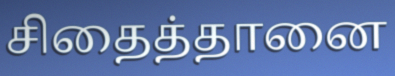
சிதைத்தானை